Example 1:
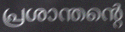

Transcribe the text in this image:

പ്രശാന്തന്റെ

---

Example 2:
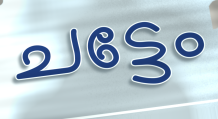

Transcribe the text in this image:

ചട്ടേം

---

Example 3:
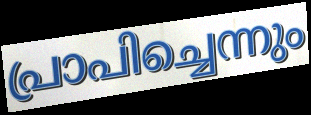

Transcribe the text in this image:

പ്രാപിച്ചെന്നും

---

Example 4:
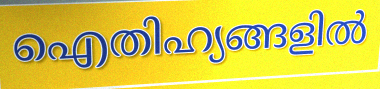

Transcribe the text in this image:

ഐതിഹ്യങ്ങളിൽ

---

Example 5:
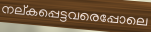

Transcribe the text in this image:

നല്കപ്പെട്ടവരെപ്പോലെ